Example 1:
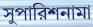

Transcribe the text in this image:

সুপারিশনামা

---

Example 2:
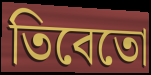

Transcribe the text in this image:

তিবেতো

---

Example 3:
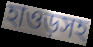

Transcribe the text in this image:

হাওড়সহ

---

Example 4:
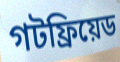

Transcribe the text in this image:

গটফ্রিয়েড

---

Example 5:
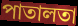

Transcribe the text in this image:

পাতালতা